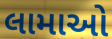
લામાઓ